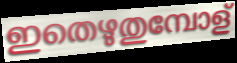
ഇതെഴുതുമ്പോള്